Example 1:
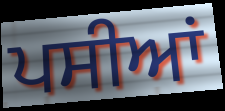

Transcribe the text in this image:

ਪਸੀਆਂ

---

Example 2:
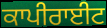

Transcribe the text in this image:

ਕਾਪੀਰਾਈਟ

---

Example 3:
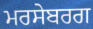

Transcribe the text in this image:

ਮਰਸੇਬਰਗ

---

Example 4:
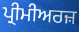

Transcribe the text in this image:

ਪ੍ਰੀਮੀਅਰਜ਼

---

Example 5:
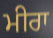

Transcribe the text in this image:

ਮੀਰਾ